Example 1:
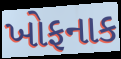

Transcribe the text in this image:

ખોફનાક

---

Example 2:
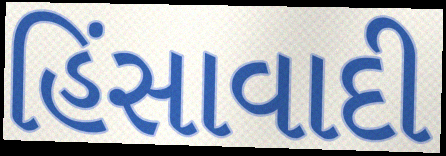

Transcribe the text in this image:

હિંસાવાદી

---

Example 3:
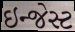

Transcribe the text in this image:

ઇન્જેસ્ટ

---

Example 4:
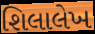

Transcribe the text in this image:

શિલાલેખ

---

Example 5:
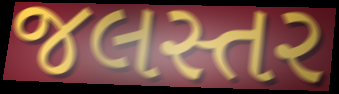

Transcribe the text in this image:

જલસ્તર